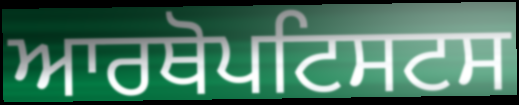
ਆਰਥੋਪਟਿਸਟਸ